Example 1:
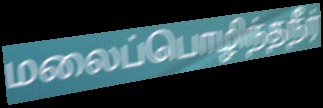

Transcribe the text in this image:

மலைப்பொழிந்தநீர்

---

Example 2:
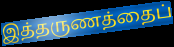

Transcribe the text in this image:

இத்தருணத்தைப்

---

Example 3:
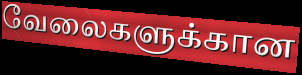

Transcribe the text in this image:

வேலைகளுக்கான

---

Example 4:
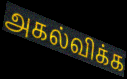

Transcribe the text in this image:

அகல்விக்க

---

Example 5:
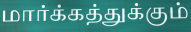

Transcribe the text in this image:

மார்க்கத்துக்கும்